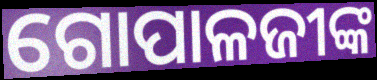
ଗୋପାଳଜୀଙ୍କ